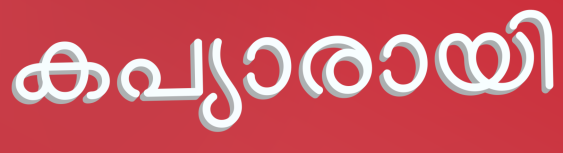
കപ്യാരായി